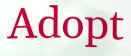
Adopt